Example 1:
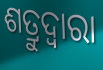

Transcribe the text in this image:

ଶତ୍ରୁଦ୍ଵାରା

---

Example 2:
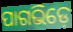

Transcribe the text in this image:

ପାଗଭିଡ଼େ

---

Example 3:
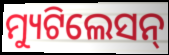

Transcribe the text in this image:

ମ୍ୟୁଟିଲେସନ୍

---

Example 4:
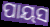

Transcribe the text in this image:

ପାୟସ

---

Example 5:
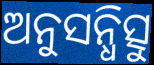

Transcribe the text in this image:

ଅନୁସନ୍ଧିତ୍ସୁ